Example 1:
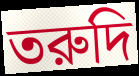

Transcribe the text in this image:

তরুদি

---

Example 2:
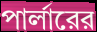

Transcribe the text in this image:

পার্লারের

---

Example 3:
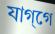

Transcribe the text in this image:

যাগ্‌গে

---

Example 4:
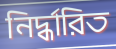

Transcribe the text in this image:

নির্দ্ধারিত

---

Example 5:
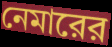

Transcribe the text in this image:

নেমারের